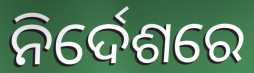
ନିର୍ଦେଶରେ